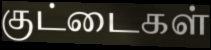
குட்டைகள்